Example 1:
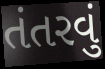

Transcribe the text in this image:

તંતરવું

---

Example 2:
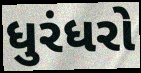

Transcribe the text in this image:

ધુરંધરો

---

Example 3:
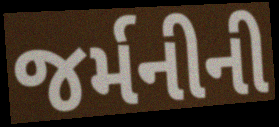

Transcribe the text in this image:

જર્મનીની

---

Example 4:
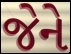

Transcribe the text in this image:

જેને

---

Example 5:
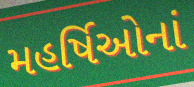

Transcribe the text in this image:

મહર્ષિઓનાં